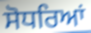
ਸੋਧਰਿਆਂ